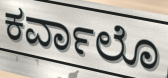
ಕರ್ವಾಲೊ